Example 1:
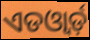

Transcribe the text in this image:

ଏଡଓ୍ବାର୍ଡ଼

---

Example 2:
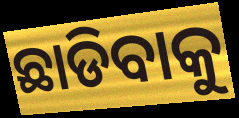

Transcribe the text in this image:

ଛାଡିବାକୁ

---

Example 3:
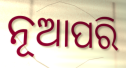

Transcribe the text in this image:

ନୂଆପରି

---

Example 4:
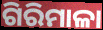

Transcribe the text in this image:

ଗିରିମାଳା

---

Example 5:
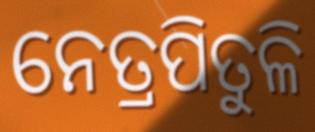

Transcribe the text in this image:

ନେତ୍ରପିତୁଳି